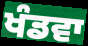
ਖੰਡਵਾ